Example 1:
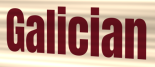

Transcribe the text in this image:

Galician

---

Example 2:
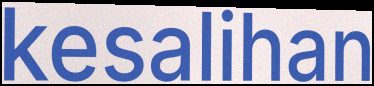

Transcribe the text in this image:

kesalihan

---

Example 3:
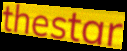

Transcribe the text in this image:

thestar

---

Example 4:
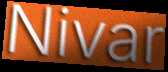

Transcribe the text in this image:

Nivar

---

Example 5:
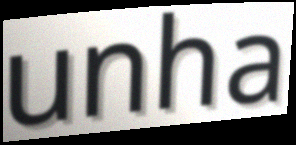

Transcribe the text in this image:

unha